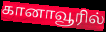
கானாவூரில்